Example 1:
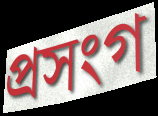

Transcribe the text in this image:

প্রসংগ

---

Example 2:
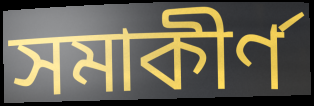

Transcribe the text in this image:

সমাকীর্ণ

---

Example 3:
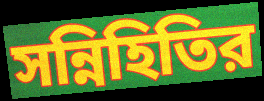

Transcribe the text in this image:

সন্নিহিতির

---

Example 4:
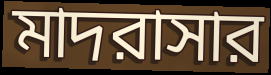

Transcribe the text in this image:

মাদরাসার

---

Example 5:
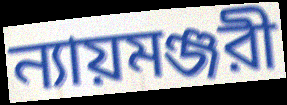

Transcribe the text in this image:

ন্যায়মঞ্জরী